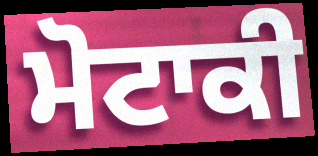
ਮੋਟਾਕੀ